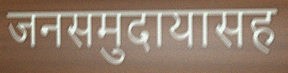
जनसमुदायासह